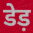
डेड़